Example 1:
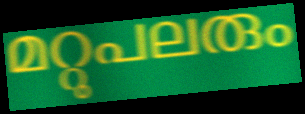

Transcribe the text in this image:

മറ്റുപലരും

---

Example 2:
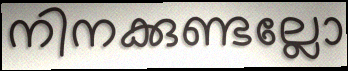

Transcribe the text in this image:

നിനക്കുണ്ടല്ലോ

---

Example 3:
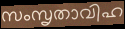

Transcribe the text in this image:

സംസൃതാവിഹ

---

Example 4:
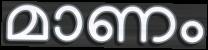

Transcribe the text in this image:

മാണം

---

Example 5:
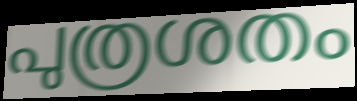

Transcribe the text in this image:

പുത്രശതം